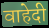
वाहेदी